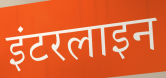
इंटरलाइन